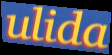
ulida